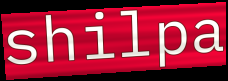
shilpa